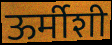
ऊर्मीशी